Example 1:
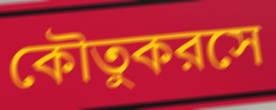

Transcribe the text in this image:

কৌতুকরসে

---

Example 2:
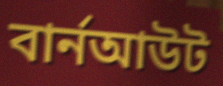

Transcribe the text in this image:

বার্নআউট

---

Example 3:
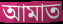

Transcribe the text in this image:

আমাত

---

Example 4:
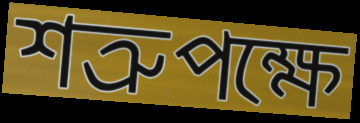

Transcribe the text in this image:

শত্রুপক্ষে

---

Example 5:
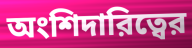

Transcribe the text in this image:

অংশিদারিত্বের